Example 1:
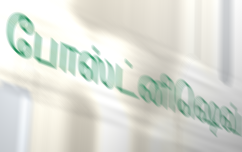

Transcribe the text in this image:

போஸ்ட்னிஷெவ்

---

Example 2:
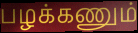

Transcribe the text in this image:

பழக்கணும்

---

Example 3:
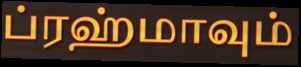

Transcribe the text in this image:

ப்ரஹ்மாவும்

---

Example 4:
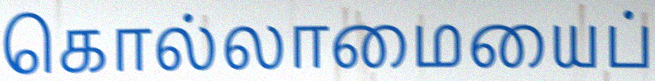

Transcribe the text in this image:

கொல்லாமையைப்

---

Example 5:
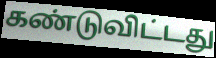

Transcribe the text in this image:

கண்டுவிட்டது